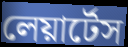
লেয়ার্টেস